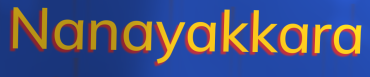
Nanayakkara